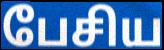
பேசிய